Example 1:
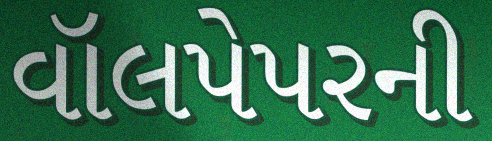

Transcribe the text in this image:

વૉલપેપરની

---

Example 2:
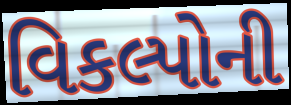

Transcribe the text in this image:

વિકલ્પોની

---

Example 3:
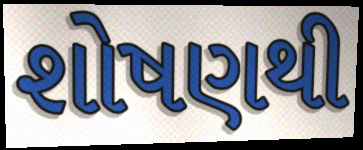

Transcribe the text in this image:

શોષણથી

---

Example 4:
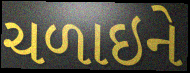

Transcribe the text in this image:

ચળાઇને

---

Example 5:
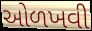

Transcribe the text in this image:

ઓળખવી